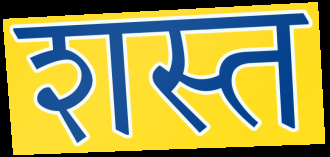
शस्त